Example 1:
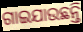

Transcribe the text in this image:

ଗାଇଯାଉଛନ୍ତି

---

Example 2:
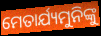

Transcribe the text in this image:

ମେତାର୍ଯ୍ୟମୁନିଙ୍କୁ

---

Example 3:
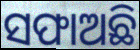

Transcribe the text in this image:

ସଫାଅଛି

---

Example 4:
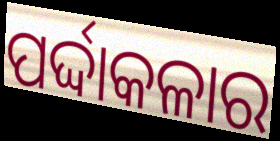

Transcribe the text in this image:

ପର୍ଦ୍ଦାକଳାର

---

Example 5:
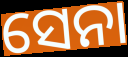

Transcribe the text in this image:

ସେନା